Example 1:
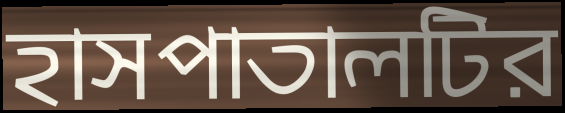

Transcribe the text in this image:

হাসপাতালটির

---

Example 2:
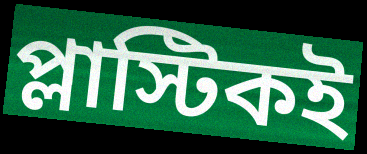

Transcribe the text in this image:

প্লাস্টিকই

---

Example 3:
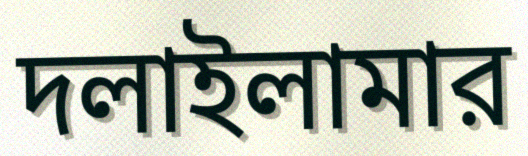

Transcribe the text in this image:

দলাইলামার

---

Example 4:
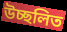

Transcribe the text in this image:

উচ্ছলিত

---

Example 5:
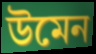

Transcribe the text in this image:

উমেন